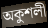
অকুশলী